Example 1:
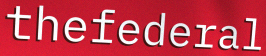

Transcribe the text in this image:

thefederal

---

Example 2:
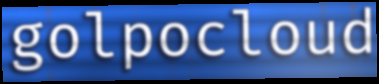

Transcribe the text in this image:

golpocloud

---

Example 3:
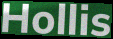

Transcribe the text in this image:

Hollis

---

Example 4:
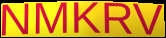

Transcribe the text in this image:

NMKRV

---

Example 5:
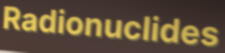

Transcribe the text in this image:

Radionuclides